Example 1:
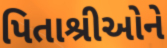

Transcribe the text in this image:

પિતાશ્રીઓને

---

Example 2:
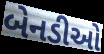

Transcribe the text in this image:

બેનડીઓ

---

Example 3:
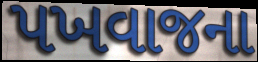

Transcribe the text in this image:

પખવાજના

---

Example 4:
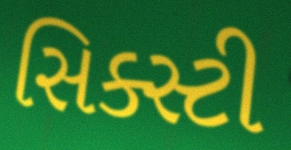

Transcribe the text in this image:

સિક્સ્ટી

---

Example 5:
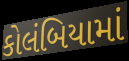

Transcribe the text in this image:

કોલંબિયામાં